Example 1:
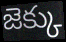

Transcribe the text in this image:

జెక్కు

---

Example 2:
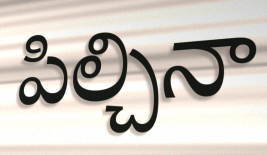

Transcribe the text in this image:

పిల్చినా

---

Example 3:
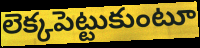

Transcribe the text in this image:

లెక్కపెట్టుకుంటూ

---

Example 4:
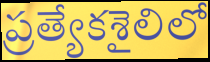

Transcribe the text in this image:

ప్రత్యేకశైలిలో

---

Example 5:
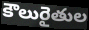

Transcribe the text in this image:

కౌలురైతుల